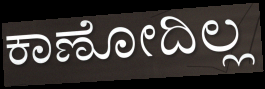
ಕಾಣೋದಿಲ್ಲ